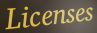
Licenses